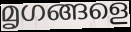
മൃഗങ്ങളെ